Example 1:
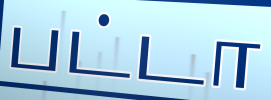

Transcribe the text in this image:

பட்டா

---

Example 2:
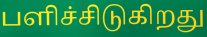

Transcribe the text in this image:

பளிச்சிடுகிறது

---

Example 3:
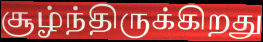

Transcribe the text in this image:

சூழ்ந்திருக்கிறது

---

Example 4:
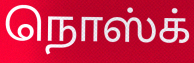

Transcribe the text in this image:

நொஸ்க்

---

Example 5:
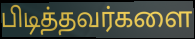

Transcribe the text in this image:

பிடித்தவர்களை